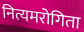
नित्यमरोगिता